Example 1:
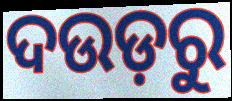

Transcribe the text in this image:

ଦଉଡ଼ରୁ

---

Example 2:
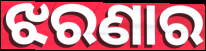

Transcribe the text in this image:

ଝରଣାର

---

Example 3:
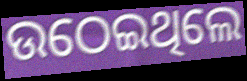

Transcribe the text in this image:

ଉଠେଇଥିଲେ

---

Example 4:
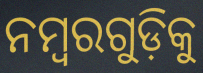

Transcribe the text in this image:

ନମ୍ବରଗୁଡ଼ିକୁ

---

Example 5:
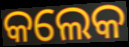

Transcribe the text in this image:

କଲେକ